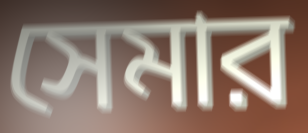
সেমার